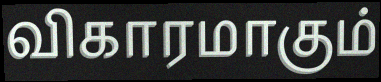
விகாரமாகும்